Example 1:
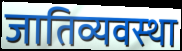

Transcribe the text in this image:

जातिव्यवस्था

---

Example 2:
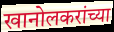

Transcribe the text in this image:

खानोलकरांच्या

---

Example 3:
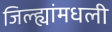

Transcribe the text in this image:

जिल्ह्यांमधली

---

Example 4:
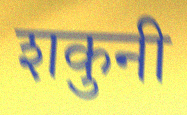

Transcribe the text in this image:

शकुनी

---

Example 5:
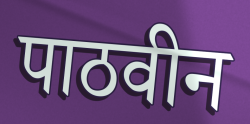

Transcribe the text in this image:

पाठवीन